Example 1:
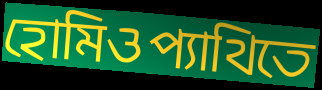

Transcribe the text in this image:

হোমিওপ্যাথিতে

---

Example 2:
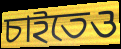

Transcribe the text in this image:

চাইতেও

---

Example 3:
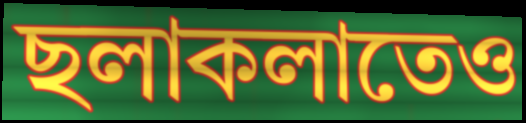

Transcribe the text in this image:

ছলাকলাতেও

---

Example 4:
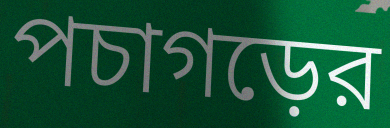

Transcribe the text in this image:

পচাগড়ের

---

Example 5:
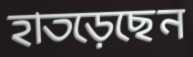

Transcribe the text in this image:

হাতড়েছেন